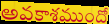
అవకాశముందో